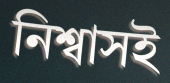
নিশ্বাসই